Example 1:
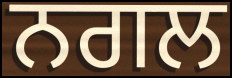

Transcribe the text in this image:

ਨਗਲ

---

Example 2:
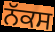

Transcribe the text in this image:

ਨੱਕਸ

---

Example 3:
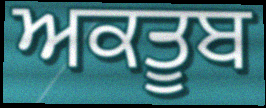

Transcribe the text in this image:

ਅਕਤੂਬ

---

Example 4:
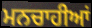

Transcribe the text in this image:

ਮਨਚਾਹੀਆਂ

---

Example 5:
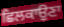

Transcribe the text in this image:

ਛਿਲਕਾਉਣਾ